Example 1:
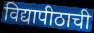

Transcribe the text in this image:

विद्यापीठाची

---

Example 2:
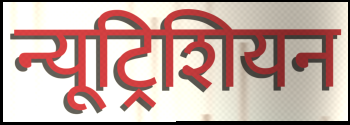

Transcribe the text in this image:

न्यूट्रिशियन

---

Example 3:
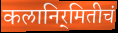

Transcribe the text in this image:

कलानिर्मितीचं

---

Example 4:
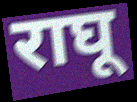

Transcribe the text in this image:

राघू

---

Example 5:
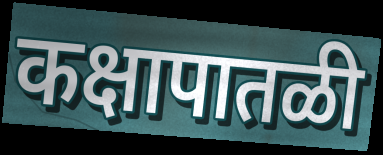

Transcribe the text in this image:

कक्षापातळी